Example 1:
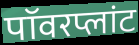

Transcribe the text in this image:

पॉवरप्लांट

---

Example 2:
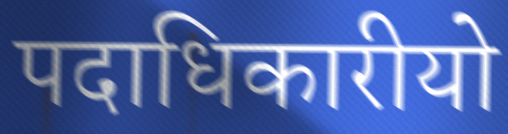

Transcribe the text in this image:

पदाधिकारीयो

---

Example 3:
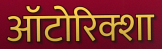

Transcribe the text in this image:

ऑटोरिक्‍शा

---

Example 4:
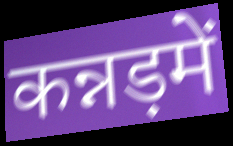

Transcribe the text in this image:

कन्नड़में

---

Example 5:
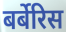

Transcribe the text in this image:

बर्बेरिस